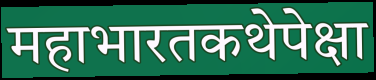
महाभारतकथेपेक्षा